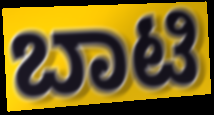
ಬಾಟಿ